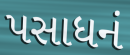
પસાધનં